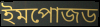
ইমপোজড